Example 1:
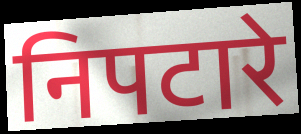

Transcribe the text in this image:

निपटारे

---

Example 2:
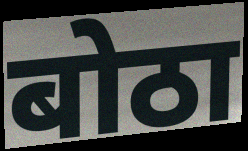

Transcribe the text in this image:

बोठा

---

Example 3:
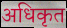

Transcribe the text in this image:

अधिकृत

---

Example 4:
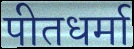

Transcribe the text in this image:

पीतधर्मा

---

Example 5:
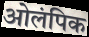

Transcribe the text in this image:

ओलंपिक